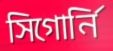
সিগোর্নি